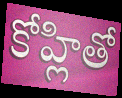
కోహ్లితో